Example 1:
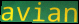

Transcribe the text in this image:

avian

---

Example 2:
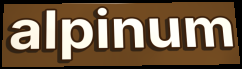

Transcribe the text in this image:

alpinum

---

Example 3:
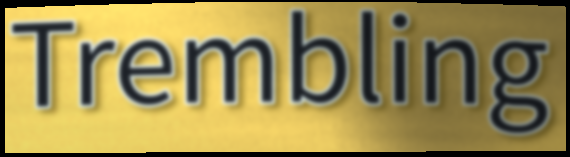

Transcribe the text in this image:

Trembling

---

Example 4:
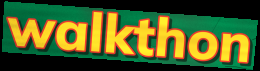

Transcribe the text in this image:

walkthon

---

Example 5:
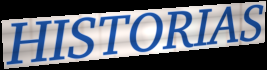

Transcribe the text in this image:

HISTORIAS